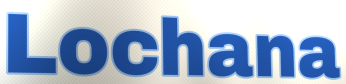
Lochana